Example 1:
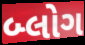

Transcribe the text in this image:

બ્લોગ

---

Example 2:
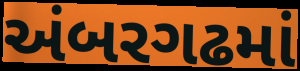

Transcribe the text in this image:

અંબરગઢમાં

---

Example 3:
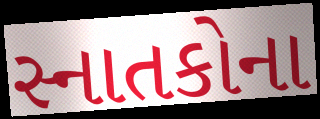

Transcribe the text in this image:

સ્નાતકોના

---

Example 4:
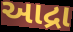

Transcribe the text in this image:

આદ્રા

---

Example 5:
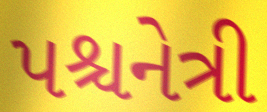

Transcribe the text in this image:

પશ્ચનેત્રી